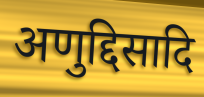
अणुद्दिसादि